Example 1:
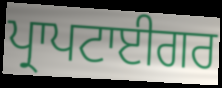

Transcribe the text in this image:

ਪ੍ਰਾਪਟਾਈਗਰ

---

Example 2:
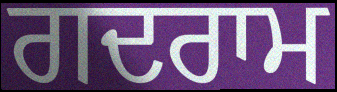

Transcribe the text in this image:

ਗਦਰਾਮ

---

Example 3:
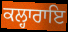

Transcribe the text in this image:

ਕਲ੍ਹਾਰਾਇ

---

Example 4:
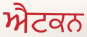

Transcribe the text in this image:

ਐਟਕਨ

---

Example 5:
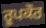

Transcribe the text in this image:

ਰੂਪਕੌਰ